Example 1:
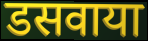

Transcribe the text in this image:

डसवाया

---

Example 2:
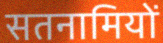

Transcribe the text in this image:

सतनामियों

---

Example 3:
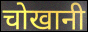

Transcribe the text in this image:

चोखानी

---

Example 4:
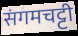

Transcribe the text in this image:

संगमचट्टी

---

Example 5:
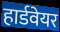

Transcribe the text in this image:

हार्डवेयर